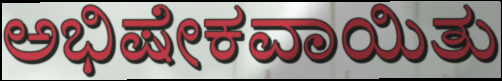
ಅಭಿಷೇಕವಾಯಿತು